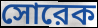
সোরেক